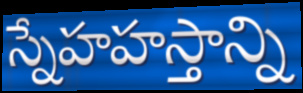
స్నేహహస్తాన్ని